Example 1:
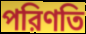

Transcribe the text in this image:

পরিণতি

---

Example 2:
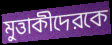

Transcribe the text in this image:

মুত্তাকীদেরকে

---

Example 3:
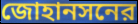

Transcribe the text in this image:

জোহানসনের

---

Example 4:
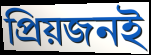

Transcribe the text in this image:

প্রিয়জনই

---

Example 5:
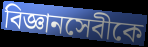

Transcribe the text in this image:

বিজ্ঞানসেবীকে